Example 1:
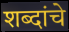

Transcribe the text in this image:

शब्दांचे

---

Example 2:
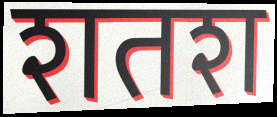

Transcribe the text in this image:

शतश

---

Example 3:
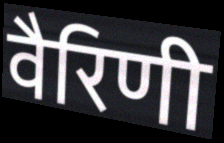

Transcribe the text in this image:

वैरिणी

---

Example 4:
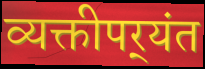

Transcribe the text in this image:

व्यक्तीपर्यंत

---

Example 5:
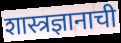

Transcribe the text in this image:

शास्त्रज्ञानाची